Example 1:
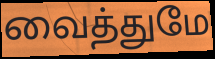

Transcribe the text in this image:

வைத்துமே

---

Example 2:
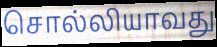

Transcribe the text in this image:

சொல்லியாவது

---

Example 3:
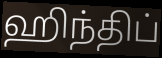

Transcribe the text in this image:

ஹிந்திப்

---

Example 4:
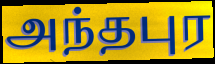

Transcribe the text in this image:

அந்தபுர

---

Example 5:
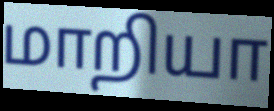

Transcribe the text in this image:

மாறியா